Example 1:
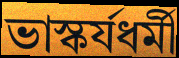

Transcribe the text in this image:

ভাস্কর্যধর্মী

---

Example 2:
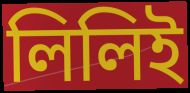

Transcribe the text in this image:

লিলিই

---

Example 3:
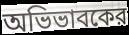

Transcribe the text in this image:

অভিভাবকের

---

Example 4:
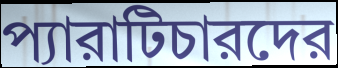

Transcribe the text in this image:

প্যারাটিচারদের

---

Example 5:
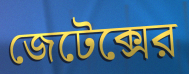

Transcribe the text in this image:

জেটেক্সের